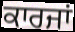
ਕਾਰਜਾਂ